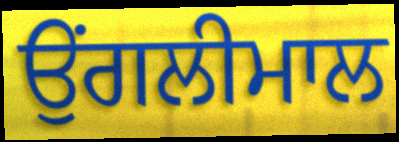
ਉਂਗਲੀਮਾਲ